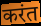
करंत